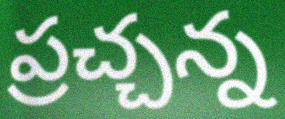
ప్రచ్చన్న